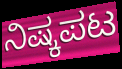
ನಿಷ್ಕಪಟ